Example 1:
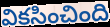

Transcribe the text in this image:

వికసించింది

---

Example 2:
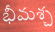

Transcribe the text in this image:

భీమశ్చ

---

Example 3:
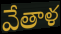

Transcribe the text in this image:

వేతాళ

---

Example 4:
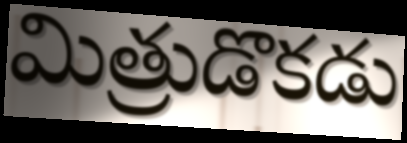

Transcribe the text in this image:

మిత్రుడొకడు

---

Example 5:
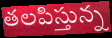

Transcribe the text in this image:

తలపిస్తున్న